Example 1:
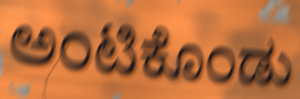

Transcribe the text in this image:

ಅಂಟಿಕೊಂಡು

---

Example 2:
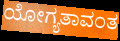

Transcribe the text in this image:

ಯೋಗ್ಯತಾವಂತ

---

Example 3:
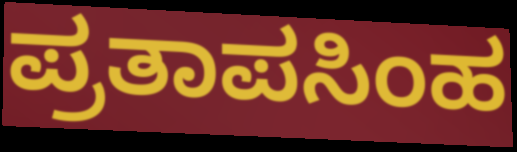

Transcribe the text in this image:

ಪ್ರತಾಪಸಿಂಹ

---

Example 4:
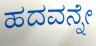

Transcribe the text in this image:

ಹದವನ್ನೇ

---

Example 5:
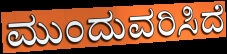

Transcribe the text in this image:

ಮುಂದುವರಿಸಿದೆ